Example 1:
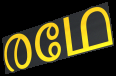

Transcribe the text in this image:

രഥേ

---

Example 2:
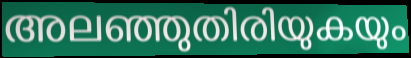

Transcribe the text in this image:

അലഞ്ഞുതിരിയുകയും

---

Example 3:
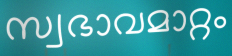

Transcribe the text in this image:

സ്വഭാവമാറ്റം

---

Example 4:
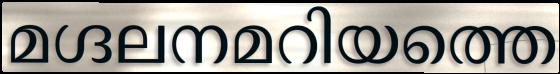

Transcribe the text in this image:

മഗ്ദലനമറിയത്തെ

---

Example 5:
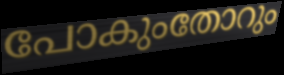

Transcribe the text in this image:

പോകുംതോറും